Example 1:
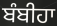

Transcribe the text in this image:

ਬੰਬੀਹਾ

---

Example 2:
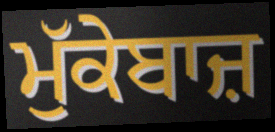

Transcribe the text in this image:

ਮੁੱਕੇਬਾਜ਼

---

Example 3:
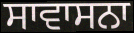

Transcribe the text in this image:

ਸਾਵਾਸਨਾ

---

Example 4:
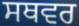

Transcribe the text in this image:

ਸਥਵਰ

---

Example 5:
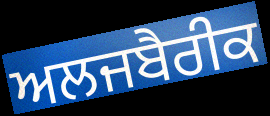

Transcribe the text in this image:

ਅਲਜਬੈਰੀਕ